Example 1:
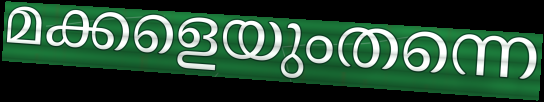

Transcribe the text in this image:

മക്കളെയുംതന്നെ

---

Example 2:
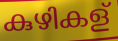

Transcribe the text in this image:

കുഴികള്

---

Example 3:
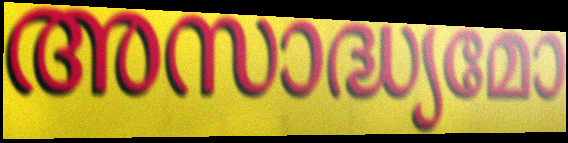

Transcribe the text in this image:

അസാദ്ധ്യമോ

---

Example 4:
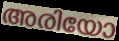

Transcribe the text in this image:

അരിയോ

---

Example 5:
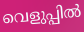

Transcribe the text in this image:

വെളുപ്പിൽ